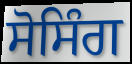
ਸੋਸਿੰਗ